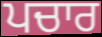
ਪਚਾਰ